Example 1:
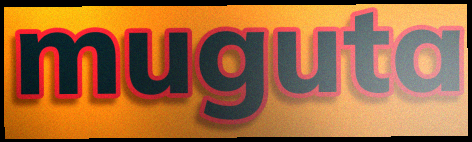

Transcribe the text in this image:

muguta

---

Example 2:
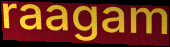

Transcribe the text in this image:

raagam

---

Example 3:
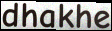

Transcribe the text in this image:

dhakhe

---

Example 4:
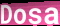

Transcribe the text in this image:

Dosa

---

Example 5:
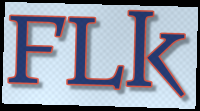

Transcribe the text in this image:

FLk